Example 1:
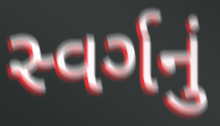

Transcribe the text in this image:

સ્વર્ગનું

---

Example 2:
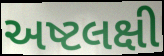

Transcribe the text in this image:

અષ્ટલક્ષી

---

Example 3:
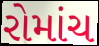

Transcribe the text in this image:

રોમાંચ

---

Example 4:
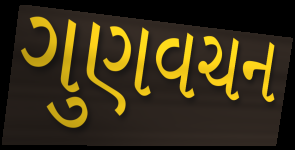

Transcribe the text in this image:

ગુણવચન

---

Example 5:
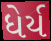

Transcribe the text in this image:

ધેર્ય